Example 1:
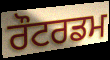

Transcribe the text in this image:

ਰੌਟਰਡਮ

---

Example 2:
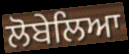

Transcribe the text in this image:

ਲੋਬੇਲਿਆ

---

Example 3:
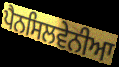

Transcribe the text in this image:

ਪੈਨਸਿਲਵੇਨੀਆ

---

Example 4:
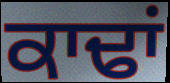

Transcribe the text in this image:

ਕਾਢਾਂ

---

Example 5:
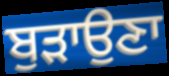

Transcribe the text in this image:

ਬੁੜਾਉਣਾ